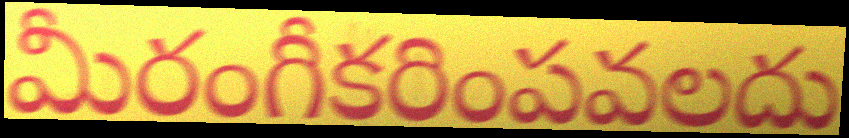
మీరంగీకరింపవలదు